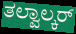
ತಲ್ವಾಲ್ಕರ್